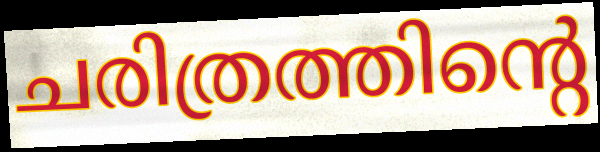
ചരിത്രത്തിന്റെ